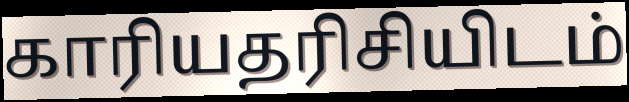
காரியதரிசியிடம்